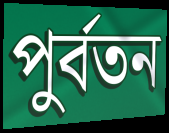
পুর্বতন